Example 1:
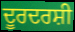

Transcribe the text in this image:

ਦੂਰਦਰਸ਼ੀ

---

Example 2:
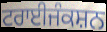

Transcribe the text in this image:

ਟਰਾਈਜੰਕਸ਼ਨ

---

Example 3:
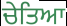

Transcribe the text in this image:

ਚੇਤਿਆ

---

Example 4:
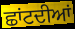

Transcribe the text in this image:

ਛਾਂਟਦੀਆਂ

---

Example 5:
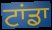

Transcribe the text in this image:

ਟਾਂਡਾ